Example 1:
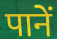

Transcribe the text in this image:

पानें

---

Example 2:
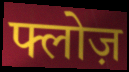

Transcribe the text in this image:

फ्लोज़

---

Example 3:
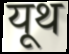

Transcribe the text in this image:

यूथ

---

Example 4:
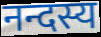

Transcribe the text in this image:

नन्दस्य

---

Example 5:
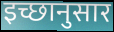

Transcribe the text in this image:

इच्‍छानुसार